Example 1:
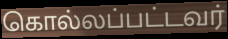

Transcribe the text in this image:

கொல்லப்பட்டவர்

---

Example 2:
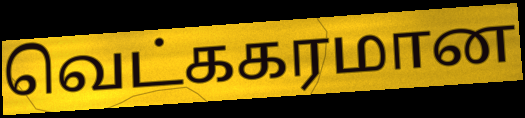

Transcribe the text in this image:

வெட்ககரமான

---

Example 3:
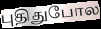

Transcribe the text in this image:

புதிதுபோல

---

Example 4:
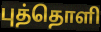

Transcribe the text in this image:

புத்தொளி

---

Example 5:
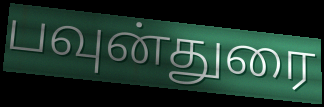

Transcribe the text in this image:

பவுன்துரை